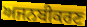
ਅਜਨਬੀਕਰਣ